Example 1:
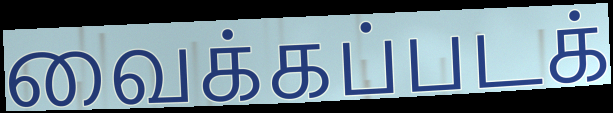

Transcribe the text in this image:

வைக்கப்படக்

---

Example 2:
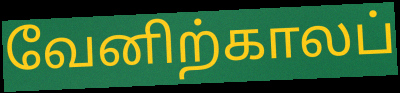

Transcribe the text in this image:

வேனிற்காலப்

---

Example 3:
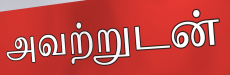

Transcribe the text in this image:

அவற்றுடன்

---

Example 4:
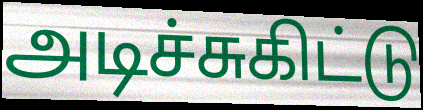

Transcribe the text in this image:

அடிச்சுகிட்டு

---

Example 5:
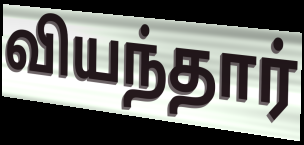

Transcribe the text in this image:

வியந்தார்